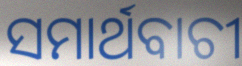
ସମାର୍ଥବାଚୀ